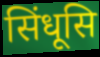
सिंधूसि